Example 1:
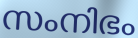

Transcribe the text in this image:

സംനിഭം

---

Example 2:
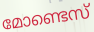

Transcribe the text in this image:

മോണ്ടെസ്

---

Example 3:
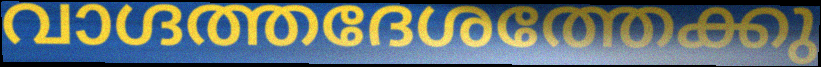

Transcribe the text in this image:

വാഗ്ദത്തദേശത്തേക്കു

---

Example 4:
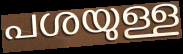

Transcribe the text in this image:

പശയുള്ള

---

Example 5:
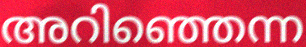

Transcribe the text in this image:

അറിഞ്ഞെന്ന